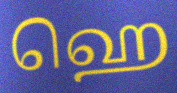
ஹெ